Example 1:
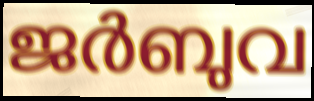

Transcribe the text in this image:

ജർബുവ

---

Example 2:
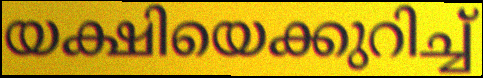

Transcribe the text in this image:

യക്ഷിയെക്കുറിച്ച്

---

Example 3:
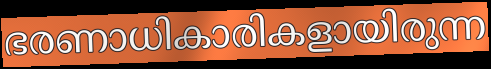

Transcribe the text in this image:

ഭരണാധികാരികളായിരുന്ന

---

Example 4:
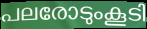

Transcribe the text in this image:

പലരോടുംകൂടി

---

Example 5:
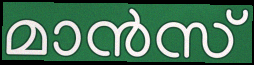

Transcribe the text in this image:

മാൻസ്